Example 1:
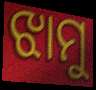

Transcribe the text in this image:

ଝାମୁ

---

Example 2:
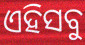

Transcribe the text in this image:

ଏହିସବୁ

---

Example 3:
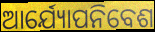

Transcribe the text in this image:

ଆର୍ଯ୍ୟୋପନିବେଶ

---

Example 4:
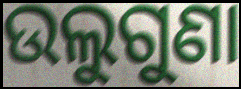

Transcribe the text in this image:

ଉଲୁଗୁଣା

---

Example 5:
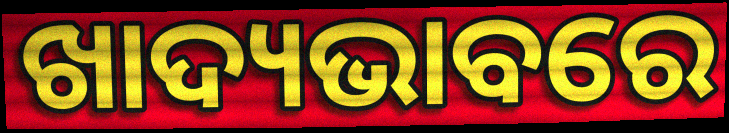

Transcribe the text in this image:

ଖାଦ୍ୟଭାବରେ